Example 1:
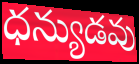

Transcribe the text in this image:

ధన్యుడవు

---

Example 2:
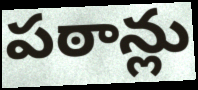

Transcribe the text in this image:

పఠాన్లు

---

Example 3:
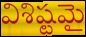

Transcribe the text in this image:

విశిష్టమై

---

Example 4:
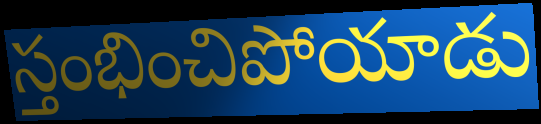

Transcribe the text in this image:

స్తంభించిపోయాడు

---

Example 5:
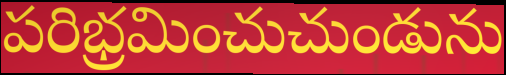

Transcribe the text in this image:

పరిభ్రమించుచుండును